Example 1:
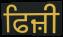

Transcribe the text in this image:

ਫਿਜ਼ੀ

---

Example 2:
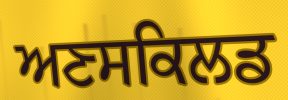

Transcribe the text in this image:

ਅਣਸਕਿਲਡ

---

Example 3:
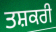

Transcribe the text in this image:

ਤਸ਼ਕਰੀ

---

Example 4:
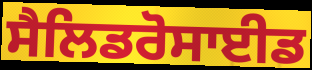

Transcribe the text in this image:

ਸੈਲਿਡਰੋਸਾਈਡ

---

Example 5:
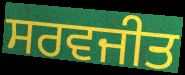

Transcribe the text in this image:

ਸਰਵਜੀਤ